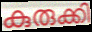
കുരുക്കി